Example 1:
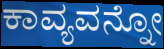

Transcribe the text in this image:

ಕಾವ್ಯವನ್ನೋ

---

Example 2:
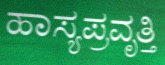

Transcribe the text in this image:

ಹಾಸ್ಯಪ್ರವೃತ್ತಿ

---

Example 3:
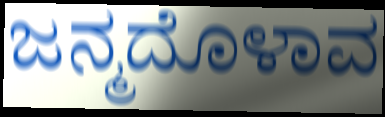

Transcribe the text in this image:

ಜನ್ಮದೊಳಾವ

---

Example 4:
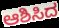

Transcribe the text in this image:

ಆಶಿಸಿದ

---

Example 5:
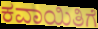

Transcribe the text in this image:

ಕವಾಯಿತಿಗೆ